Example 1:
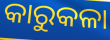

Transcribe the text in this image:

କାରୁକଳା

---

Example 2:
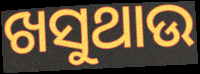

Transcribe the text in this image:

ଖସୁଥାଉ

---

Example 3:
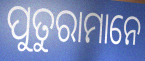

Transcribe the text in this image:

ପୁତୁରାମାନେ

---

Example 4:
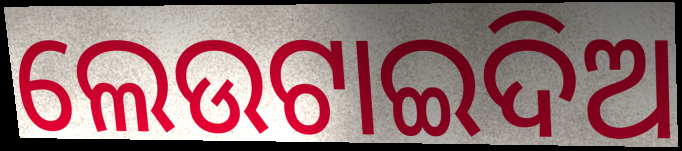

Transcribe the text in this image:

ଲେଉଟାଇଦିଅ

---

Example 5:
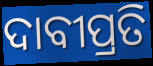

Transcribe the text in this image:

ଦାବୀପ୍ରତି